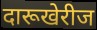
दारूखेरीज